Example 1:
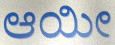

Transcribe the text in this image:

ಆಯೀ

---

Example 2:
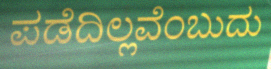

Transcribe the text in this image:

ಪಡೆದಿಲ್ಲವೆಂಬುದು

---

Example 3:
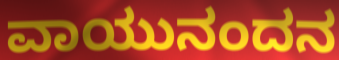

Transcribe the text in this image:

ವಾಯುನಂದನ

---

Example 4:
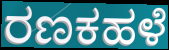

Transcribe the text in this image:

ರಣಕಹಳೆ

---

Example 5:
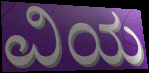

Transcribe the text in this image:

ವಿಯ